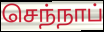
செந்நாப்